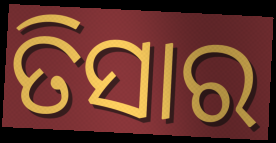
ତିସାର